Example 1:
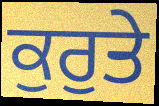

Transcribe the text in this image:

ਕੁਰੁਤੇ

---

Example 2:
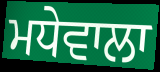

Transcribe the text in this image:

ਮਧੇਵਾਲਾ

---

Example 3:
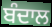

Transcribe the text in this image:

ਬੰਦਾਲ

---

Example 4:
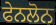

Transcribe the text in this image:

ਫੇਨਲੋਨ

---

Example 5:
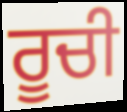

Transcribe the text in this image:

ਰੂਚੀ